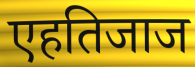
एहतिजाज